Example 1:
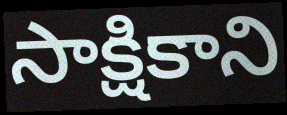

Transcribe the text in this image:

సాక్షికాని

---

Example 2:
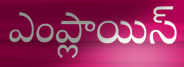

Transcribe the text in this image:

ఎంప్లాయిస్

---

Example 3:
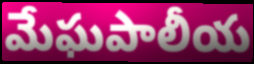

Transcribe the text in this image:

మేఘపాలీయ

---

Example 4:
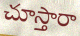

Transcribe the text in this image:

చూస్తారా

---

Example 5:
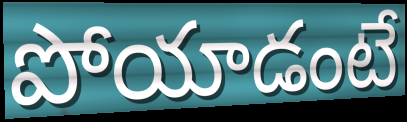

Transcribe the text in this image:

పోయాడంటే